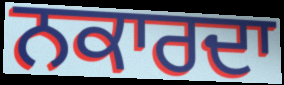
ਨਕਾਰਦਾ